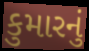
કુમારનું